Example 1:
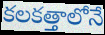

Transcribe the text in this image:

కలకత్తాలోనే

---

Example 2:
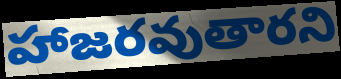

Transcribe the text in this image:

హాజరవుతారని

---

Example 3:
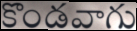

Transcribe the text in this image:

కొండవాగు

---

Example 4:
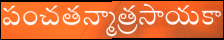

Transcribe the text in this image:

పంచతన్మాత్రసాయకా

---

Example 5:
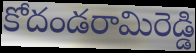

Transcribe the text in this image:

కోదండరామిరెడ్డి